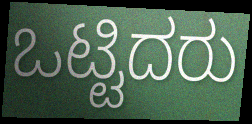
ಒಟ್ಟಿದರು